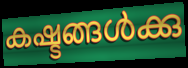
കഷ്ടങ്ങൾക്കു